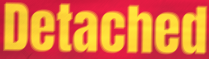
Detached